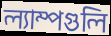
ল্যাম্পগুলি